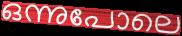
ഒന്നുപോലെ